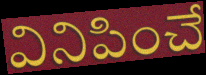
వినిపించే